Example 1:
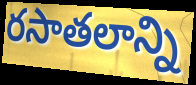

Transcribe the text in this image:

రసాతలాన్ని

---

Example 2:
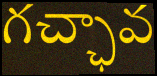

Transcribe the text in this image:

గచ్ఛావ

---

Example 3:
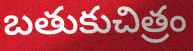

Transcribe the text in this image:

బతుకుచిత్రం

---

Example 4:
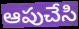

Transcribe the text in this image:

ఆపుచేసి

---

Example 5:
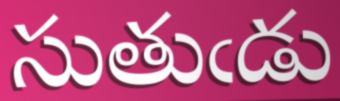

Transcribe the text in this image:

సుతుఁడు